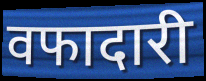
वफादारी